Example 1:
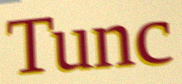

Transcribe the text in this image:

Tunc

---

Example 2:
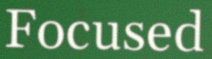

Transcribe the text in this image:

Focused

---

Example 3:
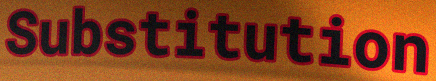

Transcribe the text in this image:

Substitution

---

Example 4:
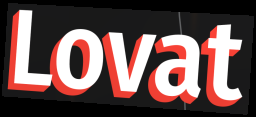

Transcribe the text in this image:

Lovat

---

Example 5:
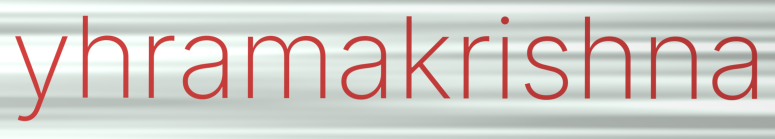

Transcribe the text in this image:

yhramakrishna